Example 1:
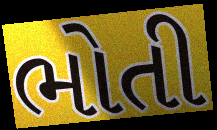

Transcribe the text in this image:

ભોતી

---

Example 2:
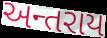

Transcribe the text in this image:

અન્તરાય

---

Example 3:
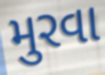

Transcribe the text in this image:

મુરવા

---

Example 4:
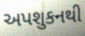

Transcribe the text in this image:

અપશુકનથી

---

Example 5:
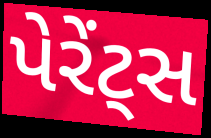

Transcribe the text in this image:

પેરેંટ્સ